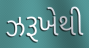
ઝરૂખેથી